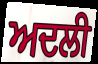
ਅਦਲੀ